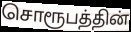
சொரூபத்தின்